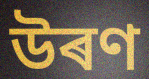
উৰণ